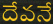
దేవనే